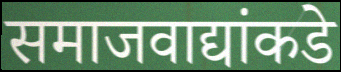
समाजवाद्यांकडे